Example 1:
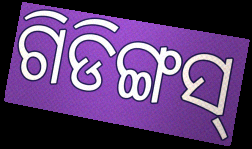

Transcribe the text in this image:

ଗିଡିଙ୍ଗସ୍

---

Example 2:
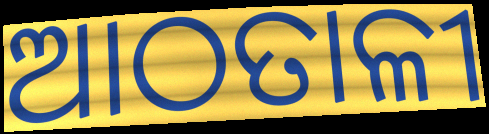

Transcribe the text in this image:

ଆଠତାଳୀ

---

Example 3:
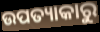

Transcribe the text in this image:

ଉପତ୍ୟାକାରୁ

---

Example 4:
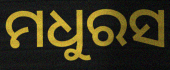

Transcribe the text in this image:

ମଧୁରସ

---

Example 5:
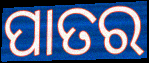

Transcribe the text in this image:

ପାତର